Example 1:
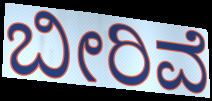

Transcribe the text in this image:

ಬೀರಿವೆ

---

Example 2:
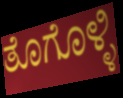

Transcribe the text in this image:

ತೊಗೊಳ್ಳಿ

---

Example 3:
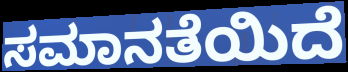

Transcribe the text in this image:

ಸಮಾನತೆಯಿದೆ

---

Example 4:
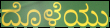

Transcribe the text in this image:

ದೊಳೆಯು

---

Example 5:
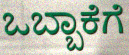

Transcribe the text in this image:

ಒಬ್ಬಾಕೆಗೆ